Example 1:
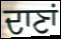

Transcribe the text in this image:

ਦਾਣਾਂ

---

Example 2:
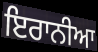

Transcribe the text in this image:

ਇਰਾਨੀਆ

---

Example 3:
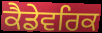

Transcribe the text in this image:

ਕੈਡੇਵਰਿਕ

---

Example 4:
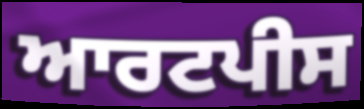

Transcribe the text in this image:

ਆਰਟਪੀਸ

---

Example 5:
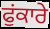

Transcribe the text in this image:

ਫੁਂਕਾਰੇ